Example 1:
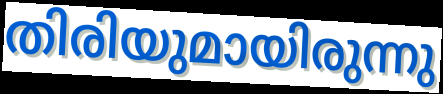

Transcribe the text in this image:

തിരിയുമായിരുന്നു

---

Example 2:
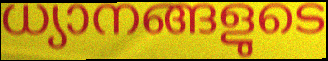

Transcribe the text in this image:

ധ്യാനങ്ങളുടെ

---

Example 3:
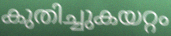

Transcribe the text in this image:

കുതിച്ചുകയറ്റം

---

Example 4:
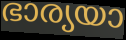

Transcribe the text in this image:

ഭാര്യയാ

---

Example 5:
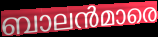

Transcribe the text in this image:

ബാലൻമാരെ